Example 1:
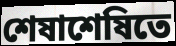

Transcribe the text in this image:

শেষাশেষিতে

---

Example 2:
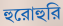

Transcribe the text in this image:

হুরোহুরি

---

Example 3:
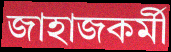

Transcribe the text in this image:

জাহাজকর্মী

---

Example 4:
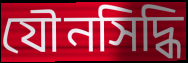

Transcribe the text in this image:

যৌনসিদ্ধি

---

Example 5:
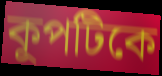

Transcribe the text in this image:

কূপটিকে